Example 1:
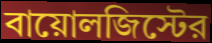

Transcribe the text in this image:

বায়োলজিস্টের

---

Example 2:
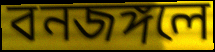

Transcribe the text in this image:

বনজঙ্গলে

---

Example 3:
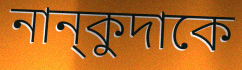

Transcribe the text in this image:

নান্‌কুদাকে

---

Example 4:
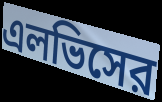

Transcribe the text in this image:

এলভিসের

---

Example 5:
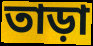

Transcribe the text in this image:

তাড়া